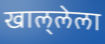
खाल्लेला